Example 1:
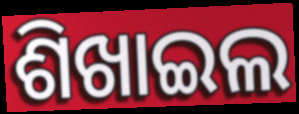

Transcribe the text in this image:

ଶିଖାଇଲ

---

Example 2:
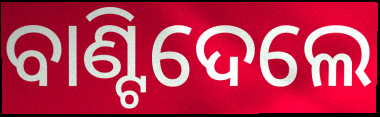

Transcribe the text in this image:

ବାଣ୍ଟିଦେଲେ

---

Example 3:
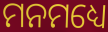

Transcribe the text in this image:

ମନମଧ୍ୟେ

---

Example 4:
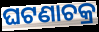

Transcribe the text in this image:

ଘଟଣାଚକ୍ର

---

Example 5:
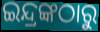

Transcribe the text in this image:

ଇନ୍ଦ୍ରଙ୍କଠାରୁ